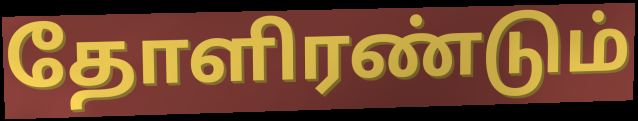
தோளிரண்டும்